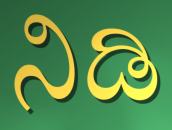
ನಿಡಿ